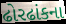
ઢોરઢાંકના